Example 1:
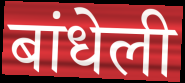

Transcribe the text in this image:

बांधेली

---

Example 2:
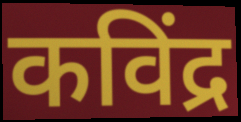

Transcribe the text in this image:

कविंद्र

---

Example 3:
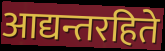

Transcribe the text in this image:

आद्यन्तरहिते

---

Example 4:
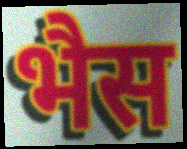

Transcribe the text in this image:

भैस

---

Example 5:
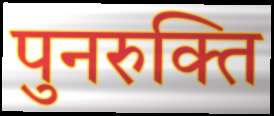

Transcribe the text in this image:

पुनरुक्ति